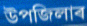
উপজিলাৰ